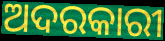
ଅଦରକାରୀ